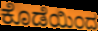
ಕೊಡೆಯಿಂದ